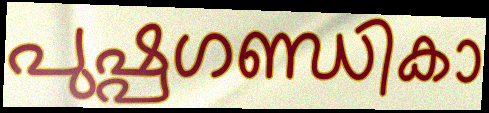
പുഷ്പഗണ്ഡികാ